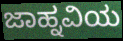
ಜಾಹ್ನವಿಯ